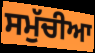
ਸਮੁੱਚੀਆ